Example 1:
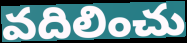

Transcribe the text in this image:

వదిలించు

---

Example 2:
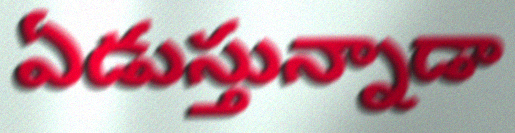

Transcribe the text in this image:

ఏడుస్తున్నాడా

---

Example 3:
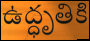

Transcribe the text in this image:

ఉద్ధృతికి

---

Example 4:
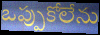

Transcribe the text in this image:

ఒప్పుకోలేను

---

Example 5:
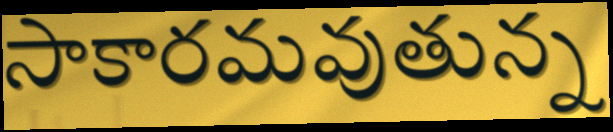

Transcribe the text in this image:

సాకారమవుతున్న